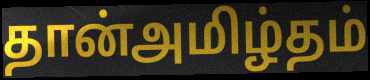
தான்அமிழ்தம்